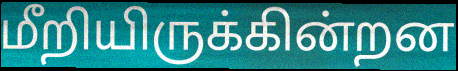
மீறியிருக்கின்றன